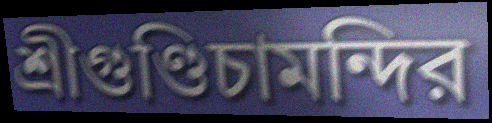
শ্রীগুণ্ডিচামন্দির